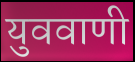
युववाणी